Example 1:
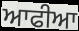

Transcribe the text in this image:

ਆਫੀਆ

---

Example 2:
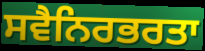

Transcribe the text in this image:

ਸਵੈਨਿਰਭਰਤਾ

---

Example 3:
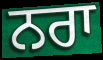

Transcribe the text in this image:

ਨਰਾ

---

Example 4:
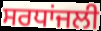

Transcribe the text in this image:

ਸਰਧਾਂਜਲੀ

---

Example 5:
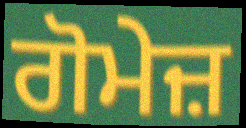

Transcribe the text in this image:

ਗੋਮੇਜ਼